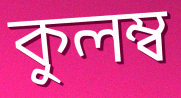
কুলম্ব